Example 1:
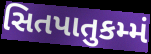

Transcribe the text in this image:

સિતપાતુકમ્મં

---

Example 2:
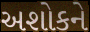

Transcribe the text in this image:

અશોકને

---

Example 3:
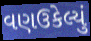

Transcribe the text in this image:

વણઉકેલ્યું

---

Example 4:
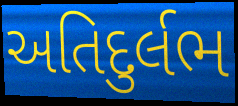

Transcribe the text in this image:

અતિદુર્લભ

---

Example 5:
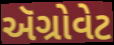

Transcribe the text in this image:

ઍગ્રોવેટ